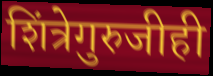
शिंत्रेगुरुजीही